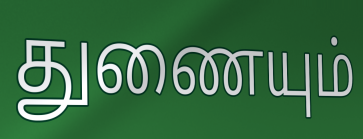
துணையும்